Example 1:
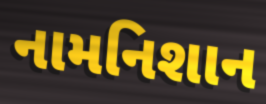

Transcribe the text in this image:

નામનિશાન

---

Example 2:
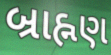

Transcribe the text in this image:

બ્રાહ્નણ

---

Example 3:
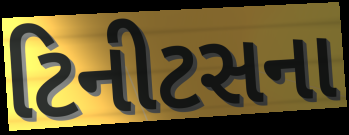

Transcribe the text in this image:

ટિનીટસના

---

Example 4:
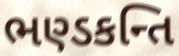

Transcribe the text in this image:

ભણ્ડકન્તિ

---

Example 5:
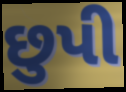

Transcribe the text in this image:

છુપી